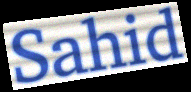
Sahid